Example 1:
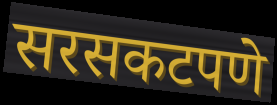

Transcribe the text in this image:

सरसकटपणे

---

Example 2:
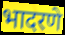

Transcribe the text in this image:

भादरणे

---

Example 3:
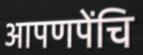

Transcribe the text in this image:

आपणपेंचि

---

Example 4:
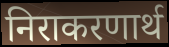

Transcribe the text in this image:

निराकरणार्थ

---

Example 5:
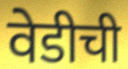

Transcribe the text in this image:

वेडीची